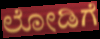
ಲೋಡಿಗೆ